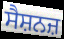
ਸੈਸ਼ਨਜ਼